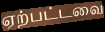
ஏற்பட்டவை